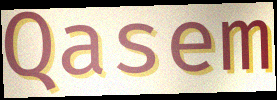
Qasem